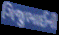
ગિજુભાઈની